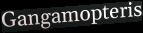
Gangamopteris